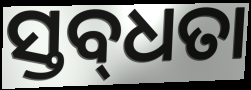
ସ୍ତବ୍‍ଧତା